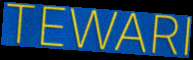
TEWARI